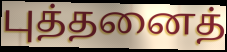
புத்தனைத்